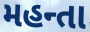
મહન્તા